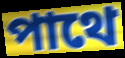
পাথে